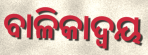
ବାଳିକାଦ୍ୱୟ